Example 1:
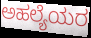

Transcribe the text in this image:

ಅಹಲ್ಯೆಯರ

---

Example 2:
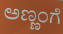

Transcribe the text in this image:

ಅಣ್ಣಂಗೆ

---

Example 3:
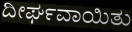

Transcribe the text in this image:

ದೀರ್ಘವಾಯಿತು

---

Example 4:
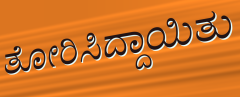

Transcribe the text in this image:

ತೋರಿಸಿದ್ದಾಯಿತು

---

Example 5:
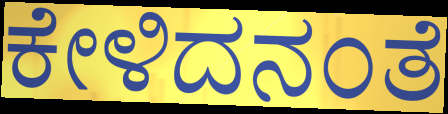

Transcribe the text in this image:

ಕೇಳಿದನಂತೆ